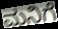
ಮನಿಗೆ